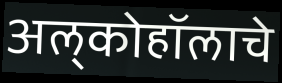
अल्कोहॉलाचे